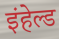
इंहेल्ड